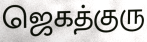
ஜெகத்குரு